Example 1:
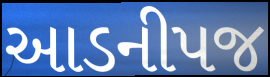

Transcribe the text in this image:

આડનીપજ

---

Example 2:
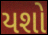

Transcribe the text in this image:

યશો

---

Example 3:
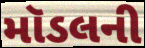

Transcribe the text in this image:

મૉડલની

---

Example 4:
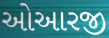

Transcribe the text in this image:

ઓઆરજી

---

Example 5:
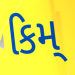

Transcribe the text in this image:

કિમ્